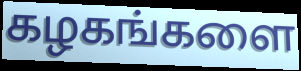
கழகங்களை